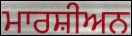
ਮਾਰਸ਼ੀਅਨ